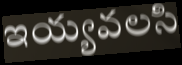
ఇయ్యవలసి